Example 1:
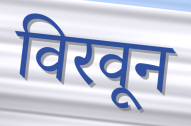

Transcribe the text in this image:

विरवून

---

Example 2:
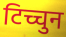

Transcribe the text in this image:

टिच्चुन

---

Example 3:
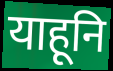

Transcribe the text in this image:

याहूनि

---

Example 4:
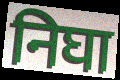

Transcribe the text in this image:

निघा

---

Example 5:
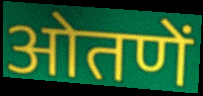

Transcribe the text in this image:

ओतणें